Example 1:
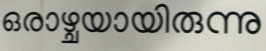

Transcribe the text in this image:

ഒരാഴ്ചയായിരുന്നു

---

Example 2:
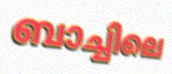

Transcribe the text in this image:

ബാച്ചിലെ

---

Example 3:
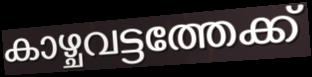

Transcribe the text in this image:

കാഴ്ചവട്ടത്തേക്ക്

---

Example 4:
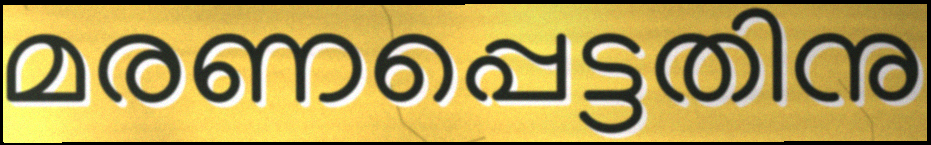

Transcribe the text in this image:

മരണപ്പെട്ടതിനു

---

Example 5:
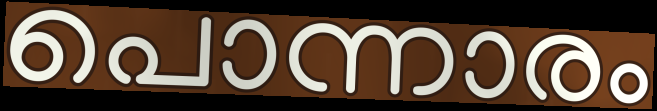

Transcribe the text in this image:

പൊന്നാരം